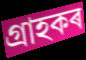
গ্ৰাহকৰ